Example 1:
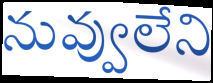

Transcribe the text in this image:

నువ్వులేని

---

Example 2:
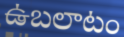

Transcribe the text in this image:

ఉబలాటం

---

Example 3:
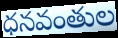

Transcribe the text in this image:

ధనవంతుల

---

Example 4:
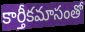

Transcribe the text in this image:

కార్తీకమాసంతో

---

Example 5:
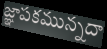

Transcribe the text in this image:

జ్ఞాపకమున్నదా